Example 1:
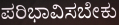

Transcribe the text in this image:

ಪರಿಭಾವಿಸಬೇಕು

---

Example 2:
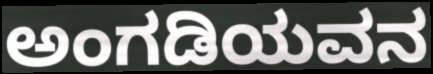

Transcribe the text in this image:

ಅಂಗಡಿಯವನ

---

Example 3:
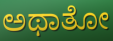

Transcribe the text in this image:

ಅಥಾತೋ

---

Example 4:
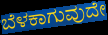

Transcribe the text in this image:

ಬೆಳಕಾಗುವುದೇ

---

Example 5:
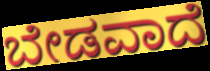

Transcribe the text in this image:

ಬೇಡವಾದೆ